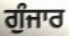
ਗੁੰਜਾਰ